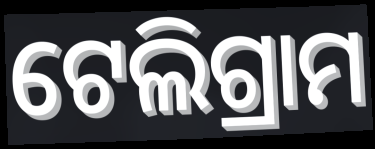
ଟେଲିଗ୍ରାମ